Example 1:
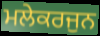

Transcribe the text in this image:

ਮਲੇਕਰਜੁਨ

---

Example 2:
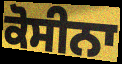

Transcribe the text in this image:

ਕੋਸੀਨਾ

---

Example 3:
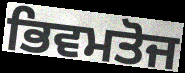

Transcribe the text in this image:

ਭਿਵਮਤੋਜ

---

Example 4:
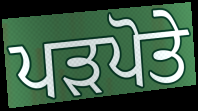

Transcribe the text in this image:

ਪੜਪੋਤੇ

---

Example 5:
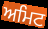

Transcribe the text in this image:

ਅਮਿਟ